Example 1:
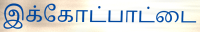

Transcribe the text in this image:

இக்கோட்பாட்டை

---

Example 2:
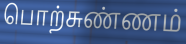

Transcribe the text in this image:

பொற்சுண்ணம்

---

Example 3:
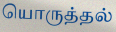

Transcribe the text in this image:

யொருத்தல்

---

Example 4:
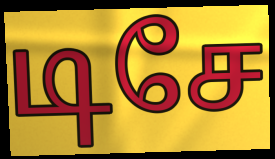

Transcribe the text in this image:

டிசே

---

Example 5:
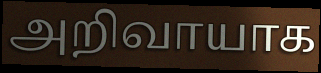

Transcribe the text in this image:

அறிவாயாக